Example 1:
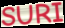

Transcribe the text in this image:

SURI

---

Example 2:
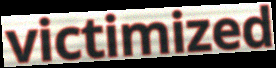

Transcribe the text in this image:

victimized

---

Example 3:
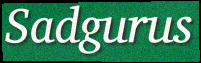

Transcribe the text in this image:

Sadgurus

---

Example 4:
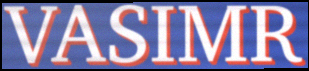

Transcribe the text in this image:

VASIMR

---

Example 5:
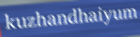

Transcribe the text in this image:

kuzhandhaiyum